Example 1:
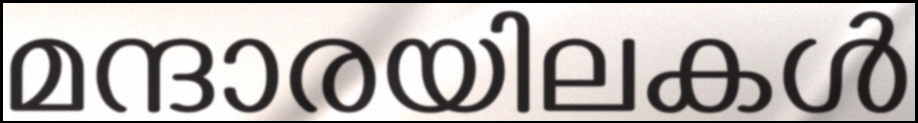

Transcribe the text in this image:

മന്ദാരയിലകൾ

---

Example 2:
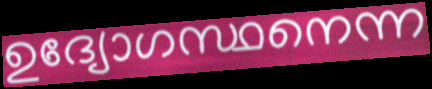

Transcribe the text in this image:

ഉദ്യോഗസ്ഥനെന്ന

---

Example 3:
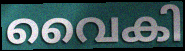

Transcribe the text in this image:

വൈകി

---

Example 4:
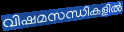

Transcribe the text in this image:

വിഷമസന്ധികളിൽ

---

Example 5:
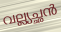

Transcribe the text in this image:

വല്ല്യച്ഛൻ